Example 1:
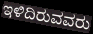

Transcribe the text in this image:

ಇಳಿದಿರುವವರು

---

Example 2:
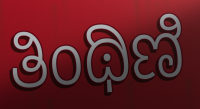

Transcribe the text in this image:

ತಿಂಥಿಣಿ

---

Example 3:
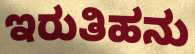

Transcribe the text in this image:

ಇರುತಿಹನು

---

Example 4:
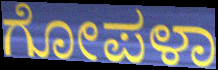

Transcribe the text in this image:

ಗೋಪಳಾ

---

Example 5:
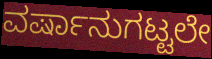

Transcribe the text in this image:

ವರ್ಷಾನುಗಟ್ಟಲೇ